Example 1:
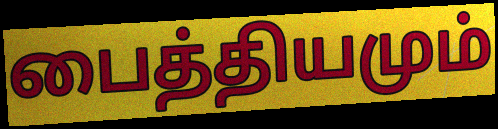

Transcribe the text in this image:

பைத்தியமும்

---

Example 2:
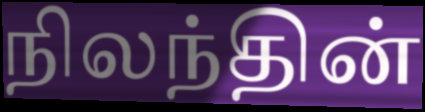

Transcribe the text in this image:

நிலந்தின்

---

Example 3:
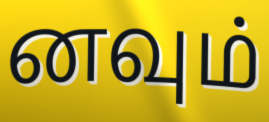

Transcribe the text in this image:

னவும்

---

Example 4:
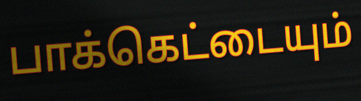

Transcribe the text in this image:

பாக்கெட்டையும்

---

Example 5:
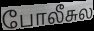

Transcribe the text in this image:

போலீசுல